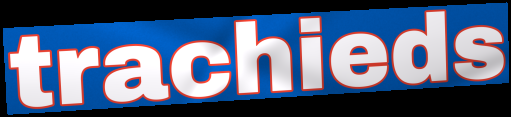
trachieds